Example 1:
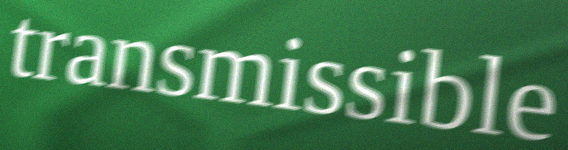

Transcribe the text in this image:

transmissible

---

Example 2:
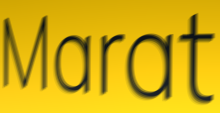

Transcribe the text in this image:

Marat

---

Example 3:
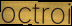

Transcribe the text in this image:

octroi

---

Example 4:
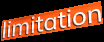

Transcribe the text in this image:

limitation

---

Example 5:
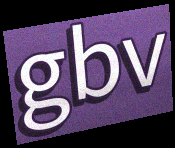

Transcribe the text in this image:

gbv